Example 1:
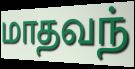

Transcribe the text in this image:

மாதவந்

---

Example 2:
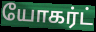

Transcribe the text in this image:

யோகர்ட்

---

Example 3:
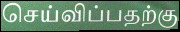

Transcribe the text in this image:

செய்விப்பதற்கு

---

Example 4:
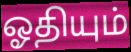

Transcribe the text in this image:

ஓதியும்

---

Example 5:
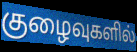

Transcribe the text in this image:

குழைவுகளில்